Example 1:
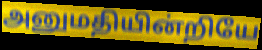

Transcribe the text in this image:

அனுமதியின்றியே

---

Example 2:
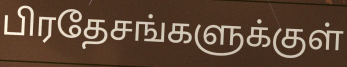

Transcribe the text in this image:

பிரதேசங்களுக்குள்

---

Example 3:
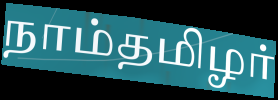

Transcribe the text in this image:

நாம்தமிழர்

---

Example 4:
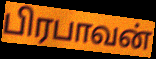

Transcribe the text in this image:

பிரபாவன்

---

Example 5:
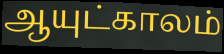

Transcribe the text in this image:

ஆயுட்காலம்